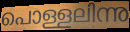
പൊള്ളലിന്നു